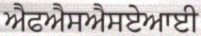
ਐਫਐਸਐਸਏਆਈ